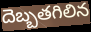
దెబ్బతగిలిన